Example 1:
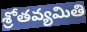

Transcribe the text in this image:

శ్రోతవ్యమితి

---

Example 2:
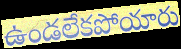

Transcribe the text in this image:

ఉండలేకపోయారు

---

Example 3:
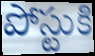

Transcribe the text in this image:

పోస్టుకి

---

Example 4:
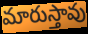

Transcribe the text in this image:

మారుస్తావు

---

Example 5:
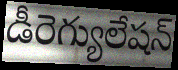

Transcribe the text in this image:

డీరెగ్యులేషన్